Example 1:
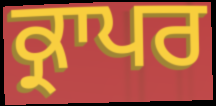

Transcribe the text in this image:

ਕ੍ਰਾਪਰ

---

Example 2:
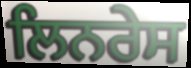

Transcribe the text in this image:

ਲਿਨਰੇਸ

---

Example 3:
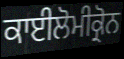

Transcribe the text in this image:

ਕਾਈਲੋਮੀਕ੍ਰੋਨ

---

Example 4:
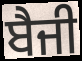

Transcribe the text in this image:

ਬੈਜੀ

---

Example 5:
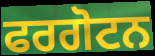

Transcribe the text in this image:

ਫਰਗੋਟਨ